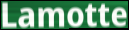
Lamotte